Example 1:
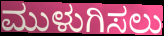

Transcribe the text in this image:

ಮುಳುಗಿಸಲು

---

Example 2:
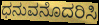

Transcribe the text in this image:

ಧನುವನೊದರಿಸಿ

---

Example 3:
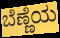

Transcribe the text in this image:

ಬೆಣ್ಣೆಯ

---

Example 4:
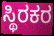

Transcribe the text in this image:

ಸ್ಥಿರಕರ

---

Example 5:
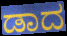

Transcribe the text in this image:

ಡಾದ